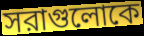
সরাগুলোকে